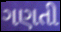
ગણતી